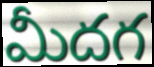
మీదగ